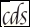
cds